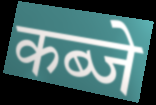
कब्जे